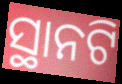
ସ୍ଥାନଟି